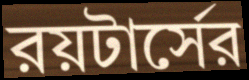
রয়টার্সের